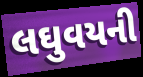
લઘુવયની